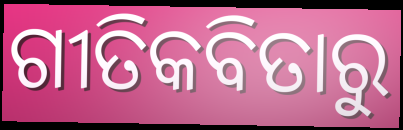
ଗୀତିକବିତାରୁ